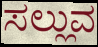
ಸಲ್ಲುವ